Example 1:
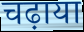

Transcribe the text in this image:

चढ़ाया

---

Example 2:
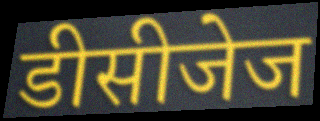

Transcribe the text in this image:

डीसीजेज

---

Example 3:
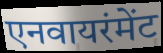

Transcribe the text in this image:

एनवायरंमेंट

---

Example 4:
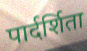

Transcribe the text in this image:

पार्दर्शिता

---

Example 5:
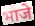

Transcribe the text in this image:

भाजे